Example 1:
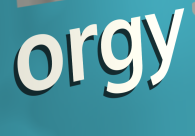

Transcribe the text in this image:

orgy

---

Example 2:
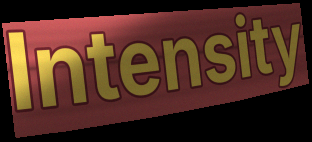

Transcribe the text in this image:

Intensity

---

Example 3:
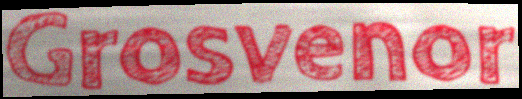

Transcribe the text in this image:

Grosvenor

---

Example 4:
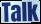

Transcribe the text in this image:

Talk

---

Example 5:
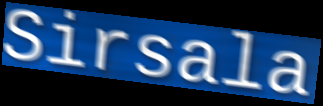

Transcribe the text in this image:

Sirsala